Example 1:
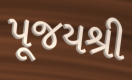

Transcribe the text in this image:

પૂજયશ્રી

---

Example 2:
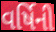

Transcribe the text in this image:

વર્ષિની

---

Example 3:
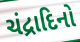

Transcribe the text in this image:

ચંદ્રાદિનો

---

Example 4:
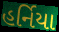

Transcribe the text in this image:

હર્નિયા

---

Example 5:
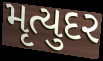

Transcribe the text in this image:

મૃત્યુદર